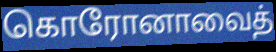
கொரோனாவைத்